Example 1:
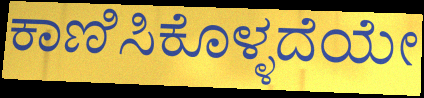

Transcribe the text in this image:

ಕಾಣಿಸಿಕೊಳ್ಳದೆಯೇ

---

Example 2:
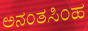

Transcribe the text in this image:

ಅನಂತಸಿಂಹ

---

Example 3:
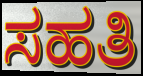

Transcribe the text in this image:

ಸಹತಿ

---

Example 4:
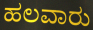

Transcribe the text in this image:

ಹಲವಾರು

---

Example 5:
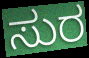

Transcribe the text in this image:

ಸುರ